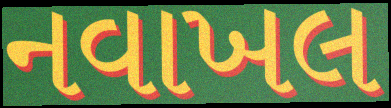
નવાખલ